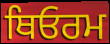
ਥਿਓਰਮ